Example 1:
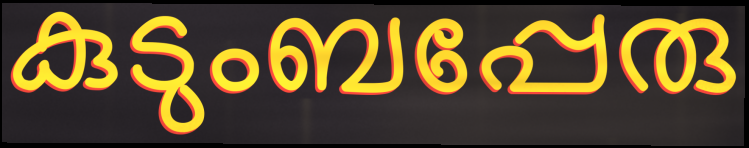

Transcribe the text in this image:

കുടുംബപ്പേരു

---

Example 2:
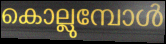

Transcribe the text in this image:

കൊല്ലുമ്പോൾ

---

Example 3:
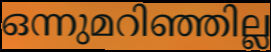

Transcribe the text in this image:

ഒന്നുമറിഞ്ഞില്ല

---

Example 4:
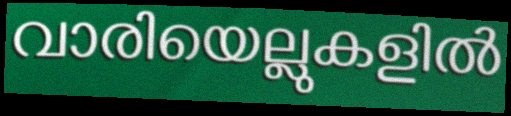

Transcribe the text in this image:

വാരിയെല്ലുകളിൽ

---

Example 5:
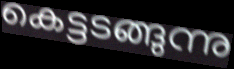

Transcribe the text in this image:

കെട്ടടങ്ങുന്നു